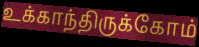
உக்காந்திருக்கோம்